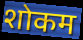
शोकम